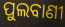
ପୁଲବାଣୀ